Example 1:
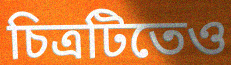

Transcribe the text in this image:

চিত্রটিতেও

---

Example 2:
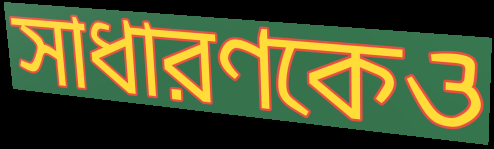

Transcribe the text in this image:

সাধারণকেও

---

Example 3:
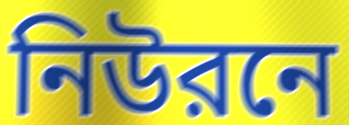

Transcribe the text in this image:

নিউরনে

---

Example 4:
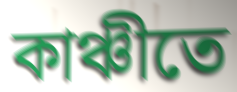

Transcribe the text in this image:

কাঞ্চীতে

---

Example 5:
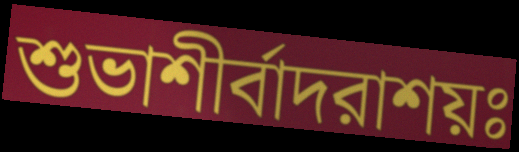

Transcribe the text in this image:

শুভাশীর্বাদরাশয়ঃ